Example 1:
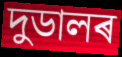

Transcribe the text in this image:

দুডালৰ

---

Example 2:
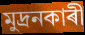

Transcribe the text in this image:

মুদ্ৰনকাৰী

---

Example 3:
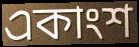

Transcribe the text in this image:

একাংশ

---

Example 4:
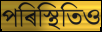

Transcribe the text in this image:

পৰিস্থিতিও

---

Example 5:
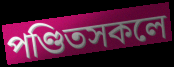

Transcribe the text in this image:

পণ্ডিতসকলে